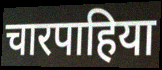
चारपाहिया